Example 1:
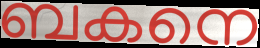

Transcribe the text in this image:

ബകനെ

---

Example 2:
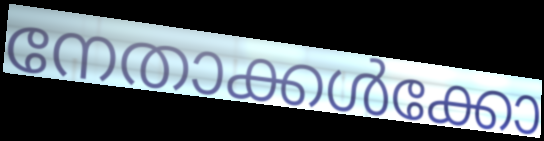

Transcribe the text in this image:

നേതാക്കൾക്കോ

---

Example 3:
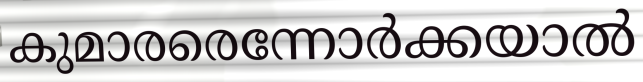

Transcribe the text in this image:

കുമാരരെന്നോർക്കയാൽ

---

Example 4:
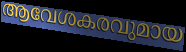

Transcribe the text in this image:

ആവേശകരവുമായ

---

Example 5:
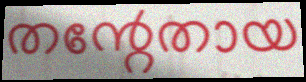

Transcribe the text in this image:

തന്റേതായ